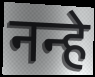
नन्हे